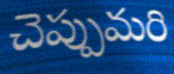
చెప్పుమరి